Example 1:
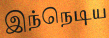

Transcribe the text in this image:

இந்நெடிய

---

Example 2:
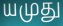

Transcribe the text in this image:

யமுது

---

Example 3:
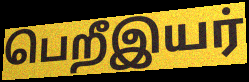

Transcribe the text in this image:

பெறீஇயர்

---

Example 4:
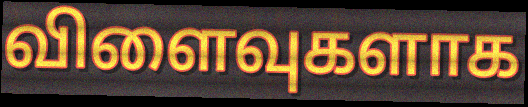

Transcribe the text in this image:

விளைவுகளாக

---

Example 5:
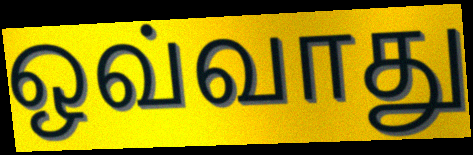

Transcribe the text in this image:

ஒவ்வாது